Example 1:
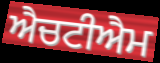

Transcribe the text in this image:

ਐਚਟੀਐਮ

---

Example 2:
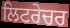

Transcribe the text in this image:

ਲਿਟਰੇਚਰ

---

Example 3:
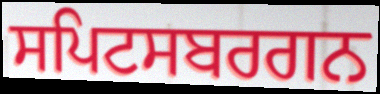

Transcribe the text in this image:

ਸਪਿਟਸਬਰਗਨ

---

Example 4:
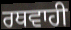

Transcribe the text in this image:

ਰਥਵਾਹੀ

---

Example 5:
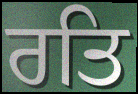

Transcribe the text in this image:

ਰਤਿ